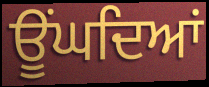
ਊਂਘਦਿਆਂ